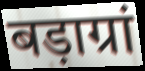
बड़ाग्रां